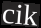
cik